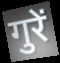
गुरें